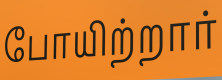
போயிற்றார்